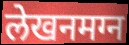
लेखनमग्न